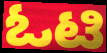
ಓಟಿ